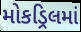
મોકડ્રિલમાં